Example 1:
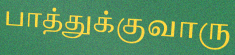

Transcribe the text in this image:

பாத்துக்குவாரு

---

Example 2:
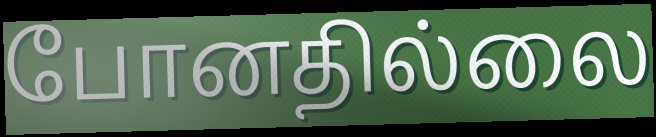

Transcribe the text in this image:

போனதில்லை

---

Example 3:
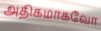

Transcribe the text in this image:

அதிகமாகவோ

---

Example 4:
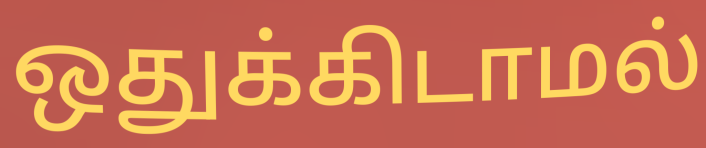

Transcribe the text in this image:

ஒதுக்கிடாமல்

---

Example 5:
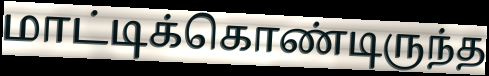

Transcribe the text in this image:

மாட்டிக்கொண்டிருந்த